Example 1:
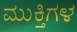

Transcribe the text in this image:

ಮುಕ್ತಿಗಳ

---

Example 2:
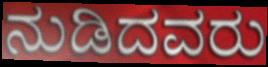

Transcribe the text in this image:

ನುಡಿದವರು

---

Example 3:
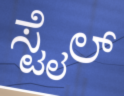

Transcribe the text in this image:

ಸ್ಟೈಲ್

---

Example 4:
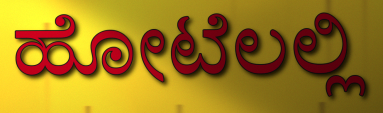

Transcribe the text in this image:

ಹೋಟೆಲಲ್ಲಿ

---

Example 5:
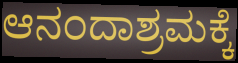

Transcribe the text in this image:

ಆನಂದಾಶ್ರಮಕ್ಕೆ